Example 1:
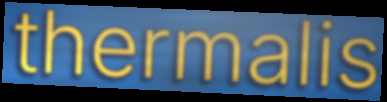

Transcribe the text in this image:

thermalis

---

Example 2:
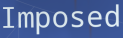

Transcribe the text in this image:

Imposed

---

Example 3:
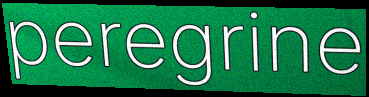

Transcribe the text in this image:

peregrine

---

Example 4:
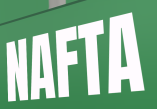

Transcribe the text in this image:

NAFTA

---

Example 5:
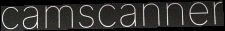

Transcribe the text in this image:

camscanner